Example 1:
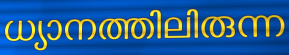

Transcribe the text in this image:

ധ്യാനത്തിലിരുന്ന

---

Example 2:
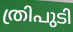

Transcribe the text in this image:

ത്രിപുടി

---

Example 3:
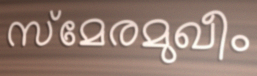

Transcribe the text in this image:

സ്മേരമുഖീം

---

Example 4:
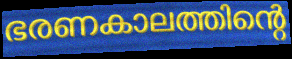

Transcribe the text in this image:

ഭരണകാലത്തിന്റെ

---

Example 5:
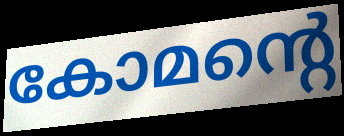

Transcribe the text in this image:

കോമന്റെ